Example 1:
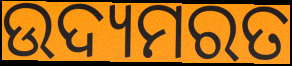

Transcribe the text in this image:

ଉଦ୍ୟମରତ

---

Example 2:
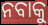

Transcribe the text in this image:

ନବାକୁ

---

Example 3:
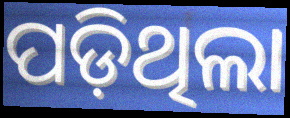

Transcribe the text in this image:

ପଡ଼ିଥିଲା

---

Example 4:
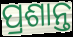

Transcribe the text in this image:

ପ୍ରଶାନ୍ତ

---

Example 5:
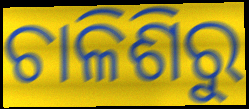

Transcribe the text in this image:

ଚାଳିଶିରୁ